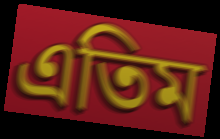
এতিম